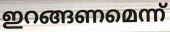
ഇറങ്ങണമെന്ന്